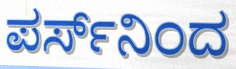
ಪರ್ಸ್‌ನಿಂದ